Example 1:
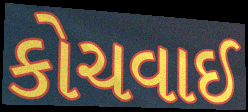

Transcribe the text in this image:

કોચવાઈ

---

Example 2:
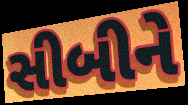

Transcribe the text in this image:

સીબીને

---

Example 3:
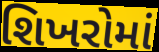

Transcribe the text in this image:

શિખરોમાં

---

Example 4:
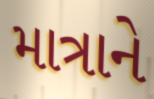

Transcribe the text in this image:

માત્રાને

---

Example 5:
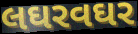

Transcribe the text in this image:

લઘરવઘર